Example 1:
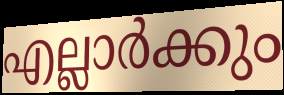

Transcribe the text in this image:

എല്ലാർക്കും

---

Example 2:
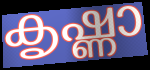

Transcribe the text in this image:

കൃഷ്ണാ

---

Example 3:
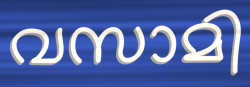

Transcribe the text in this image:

വസാമി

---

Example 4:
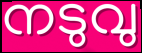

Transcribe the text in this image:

നടുവു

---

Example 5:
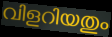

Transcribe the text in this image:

വിളറിയതും